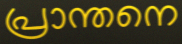
പ്രാന്തനെ